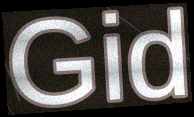
Gid